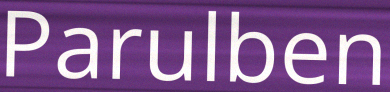
Parulben